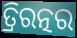
ତ୍ରିରତ୍ନର